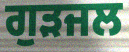
ਗੁੜਜਲ